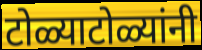
टोळ्याटोळ्यांनी